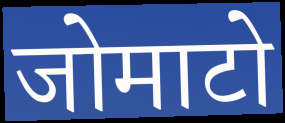
जोमाटो